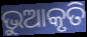
ଭୁଆକୃତି